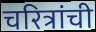
चरित्रांची